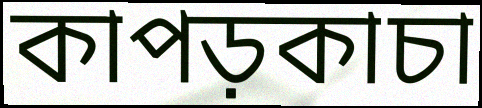
কাপড়কাচা